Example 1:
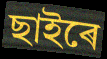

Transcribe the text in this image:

ছাইৰে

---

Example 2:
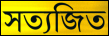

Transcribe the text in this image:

সত্যজিত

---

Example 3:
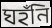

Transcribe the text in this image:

ঘহঁনি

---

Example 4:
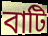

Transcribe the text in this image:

বাটি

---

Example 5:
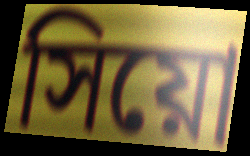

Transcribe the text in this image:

সিয়ো